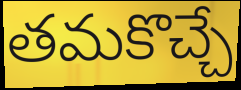
తమకొచ్చే